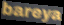
bareya